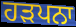
ਹੜਪਨਾ